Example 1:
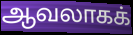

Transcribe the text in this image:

ஆவலாகக்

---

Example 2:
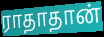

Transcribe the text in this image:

ராதாதான்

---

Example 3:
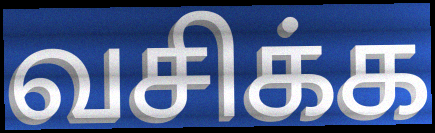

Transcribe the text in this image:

வசிக்க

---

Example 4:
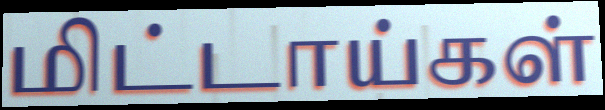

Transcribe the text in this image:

மிட்டாய்கள்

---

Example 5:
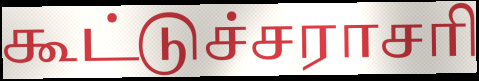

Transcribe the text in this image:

கூட்டுச்சராசரி